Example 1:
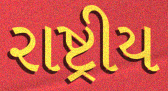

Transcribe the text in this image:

રાષ્ટ્રીય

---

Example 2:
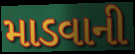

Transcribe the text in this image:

માડવાની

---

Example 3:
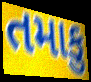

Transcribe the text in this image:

તમાકુ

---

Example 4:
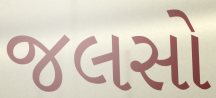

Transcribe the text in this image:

જલસો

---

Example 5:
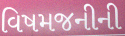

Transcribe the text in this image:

વિષમજનીની